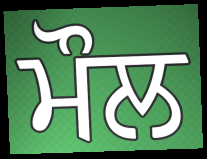
ਮੌਲ